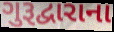
ગુરૂદ્વારાના